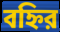
বহ্নির